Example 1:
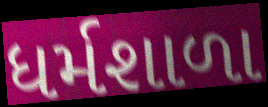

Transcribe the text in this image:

ધર્મશાળા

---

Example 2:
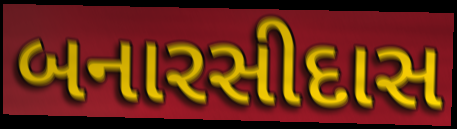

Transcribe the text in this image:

બનારસીદાસ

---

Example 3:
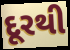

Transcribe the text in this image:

દૂરથી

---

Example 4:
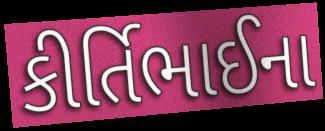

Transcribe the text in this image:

કીર્તિભાઈના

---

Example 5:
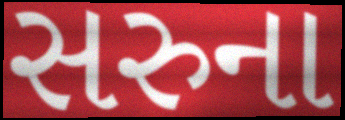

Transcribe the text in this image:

સરુના